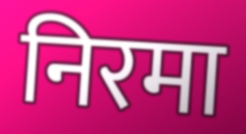
निरमा